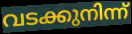
വടക്കുനിന്ന്